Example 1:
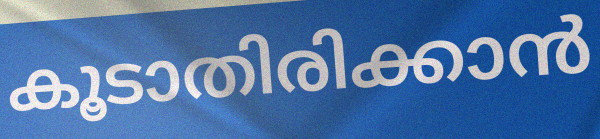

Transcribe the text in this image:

കൂടാതിരിക്കാൻ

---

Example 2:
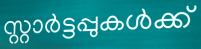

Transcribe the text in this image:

സ്റ്റാർട്ടപ്പുകൾക്ക്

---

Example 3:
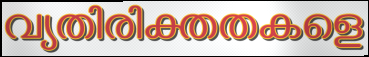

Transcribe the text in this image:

വ്യതിരിക്തതകളെ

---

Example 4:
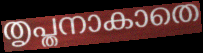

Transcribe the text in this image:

തൃപ്തനാകാതെ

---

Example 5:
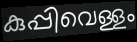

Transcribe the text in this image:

കുപ്പിവെള്ളം